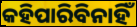
କହିପାରିବିନାହିଁ